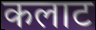
कलाट